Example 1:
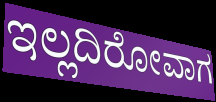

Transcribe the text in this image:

ಇಲ್ಲದಿರೋವಾಗ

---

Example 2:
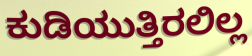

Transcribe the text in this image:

ಕುಡಿಯುತ್ತಿರಲಿಲ್ಲ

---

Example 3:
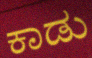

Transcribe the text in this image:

ಕಾಡು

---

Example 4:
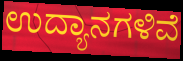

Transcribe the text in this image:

ಉದ್ಯಾನಗಳಿವೆ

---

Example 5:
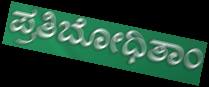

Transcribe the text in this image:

ಪ್ರತಿಬೋಧಿತಾಂ